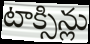
టాక్సిన్లు